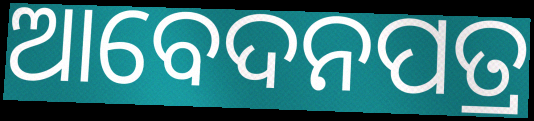
ଆବେଦନପତ୍ର